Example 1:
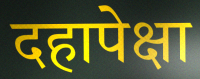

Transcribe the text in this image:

दहापेक्षा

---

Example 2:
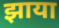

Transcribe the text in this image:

झाया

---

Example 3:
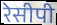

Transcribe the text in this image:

रेसीपी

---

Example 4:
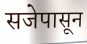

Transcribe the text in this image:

सजेपासून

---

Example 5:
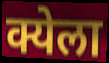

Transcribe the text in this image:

क्येला